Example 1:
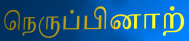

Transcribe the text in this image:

நெருப்பினாற்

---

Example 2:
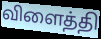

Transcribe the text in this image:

விளைத்தி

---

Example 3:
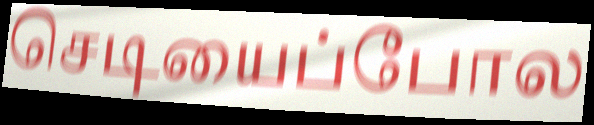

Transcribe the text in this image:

செடியைப்போல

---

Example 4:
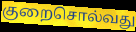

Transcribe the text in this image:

குறைசொல்வது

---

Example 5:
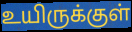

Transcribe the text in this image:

உயிருக்குள்